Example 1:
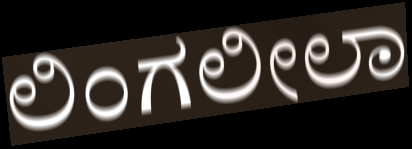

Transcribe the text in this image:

ಲಿಂಗಲೀಲಾ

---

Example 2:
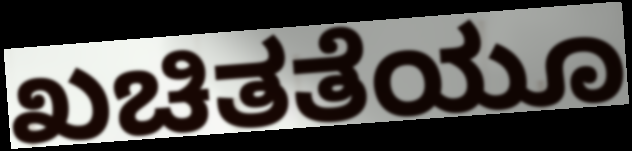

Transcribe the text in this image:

ಖಚಿತತೆಯೂ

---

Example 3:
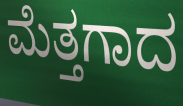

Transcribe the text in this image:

ಮೆತ್ತಗಾದ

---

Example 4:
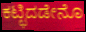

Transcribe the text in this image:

ಕಟ್ಟಿದಡೇನೊ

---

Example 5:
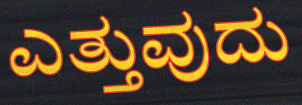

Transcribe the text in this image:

ಎತ್ತುವುದು